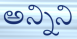
అన్నిని